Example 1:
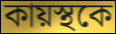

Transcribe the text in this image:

কায়স্থকে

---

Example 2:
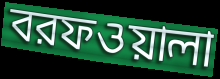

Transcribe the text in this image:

বরফওয়ালা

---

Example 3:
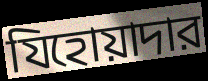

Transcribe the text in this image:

যিহোয়াদার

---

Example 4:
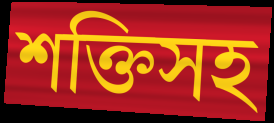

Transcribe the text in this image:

শক্তিসহ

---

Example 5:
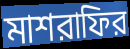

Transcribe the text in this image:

মাশরাফির